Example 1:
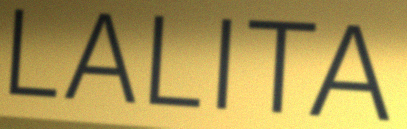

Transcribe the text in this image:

LALITA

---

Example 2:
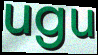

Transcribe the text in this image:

ugu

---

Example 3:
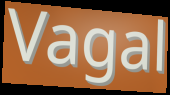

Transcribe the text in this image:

Vagal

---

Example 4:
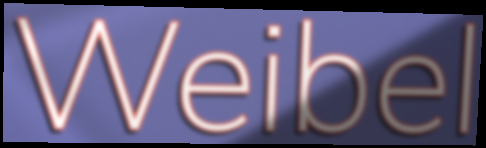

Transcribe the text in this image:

Weibel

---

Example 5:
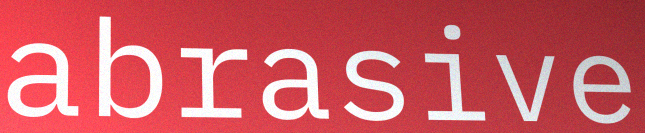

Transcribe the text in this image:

abrasive